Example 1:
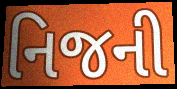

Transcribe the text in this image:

નિજની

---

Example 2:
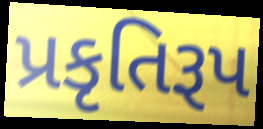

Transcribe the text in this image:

પ્રકૃતિરૂપ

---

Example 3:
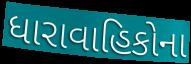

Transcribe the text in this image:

ધારાવાહિકોના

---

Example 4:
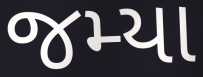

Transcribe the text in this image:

જમ્યા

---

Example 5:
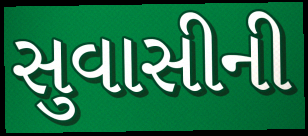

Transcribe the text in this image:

સુવાસીની